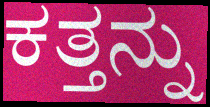
ಕತ್ತನ್ನು